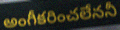
అంగీకరించలేననీ